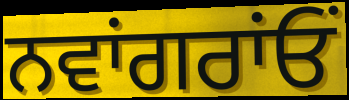
ਨਵਾਂਗਰਾਂਓਂ